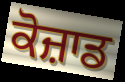
ਕੋਜ਼ਾਡ